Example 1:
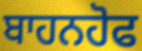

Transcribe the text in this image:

ਬਾਹਨਹੋਫ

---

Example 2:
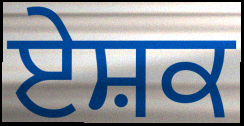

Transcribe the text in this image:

ਏਸ਼ਕ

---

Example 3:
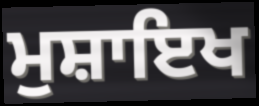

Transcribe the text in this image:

ਮੁਸ਼ਾਇਖ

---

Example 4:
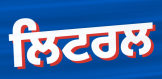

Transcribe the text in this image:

ਲਿਟਰਲ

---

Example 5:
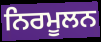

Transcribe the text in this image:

ਨਿਰਮੂਲਨ